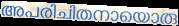
അപരിചിതനായൊരു